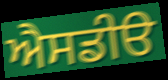
ਐਸਡੀੳ